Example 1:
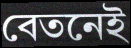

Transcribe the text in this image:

বেতনেই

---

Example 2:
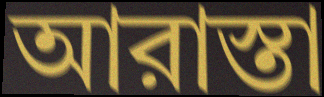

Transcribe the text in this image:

আরাস্তা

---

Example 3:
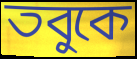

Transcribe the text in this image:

তবুকে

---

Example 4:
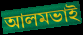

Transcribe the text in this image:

আলমভাই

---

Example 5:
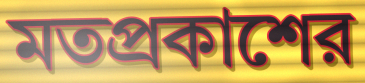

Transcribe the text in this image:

মতপ্রকাশের